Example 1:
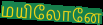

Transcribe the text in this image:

மயிலோனே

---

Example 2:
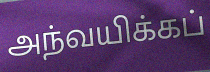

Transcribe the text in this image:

அந்வயிக்கப்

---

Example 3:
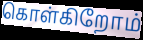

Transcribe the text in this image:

கொள்கிறோம்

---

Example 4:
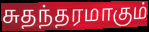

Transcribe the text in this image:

சுதந்தரமாகும்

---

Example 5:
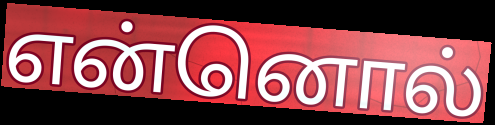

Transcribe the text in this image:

என்னொல்